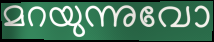
മറയുന്നുവോ